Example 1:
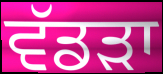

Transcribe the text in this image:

ਵੱਡਡ਼ਾ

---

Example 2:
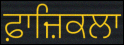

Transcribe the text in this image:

ਫ਼ਾਜ਼ਿਕਲਾ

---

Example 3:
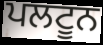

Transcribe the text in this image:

ਪਲਟੂਨ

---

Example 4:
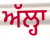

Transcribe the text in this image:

ਅੱਲ੍ਹਾ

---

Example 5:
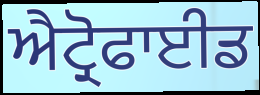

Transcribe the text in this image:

ਐਟ੍ਰੋਫਾਈਡ